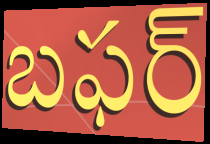
బఫర్